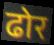
ढोर